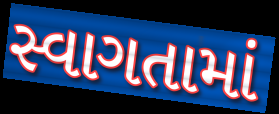
સ્વાગતામાં